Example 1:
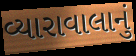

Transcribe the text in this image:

વ્યારાવાલાનું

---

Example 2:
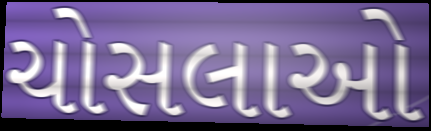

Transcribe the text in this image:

ચોસલાઓ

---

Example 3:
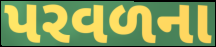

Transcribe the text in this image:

પરવળના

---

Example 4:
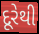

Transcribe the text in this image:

દૂરેથી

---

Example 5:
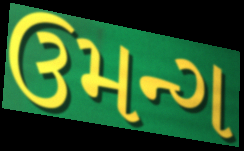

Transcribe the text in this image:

ઉમન્ગ